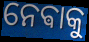
ନେଵାକୁ